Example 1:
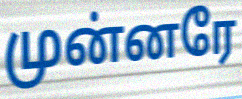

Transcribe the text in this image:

முன்னரே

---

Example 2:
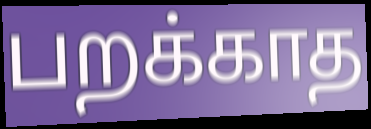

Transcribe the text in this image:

பறக்காத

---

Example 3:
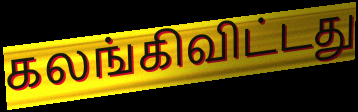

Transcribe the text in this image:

கலங்கிவிட்டது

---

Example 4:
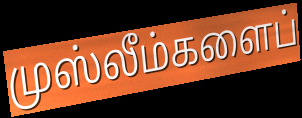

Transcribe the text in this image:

முஸ்லீம்களைப்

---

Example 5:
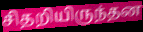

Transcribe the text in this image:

சிதறியிருந்தன